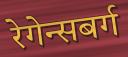
रेगेन्सबर्ग